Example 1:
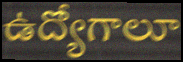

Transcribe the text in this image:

ఉద్యోగాలూ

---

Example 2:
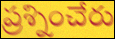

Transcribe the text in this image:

ప్రశ్నించేరు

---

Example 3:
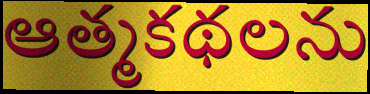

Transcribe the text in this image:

ఆత్మకథలను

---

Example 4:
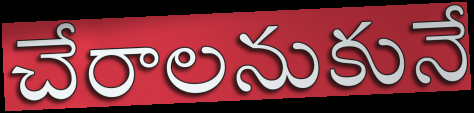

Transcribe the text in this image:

చేరాలనుకునే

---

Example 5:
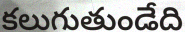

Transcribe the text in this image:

కలుగుతుండేది